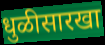
धुळीसारखा